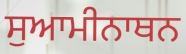
ਸੁਆਮੀਨਾਥਨ